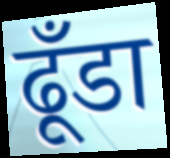
ढूँडा